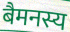
बैमनस्य